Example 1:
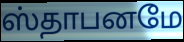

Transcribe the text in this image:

ஸ்தாபனமே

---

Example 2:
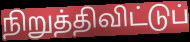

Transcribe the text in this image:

நிறுத்திவிட்டுப்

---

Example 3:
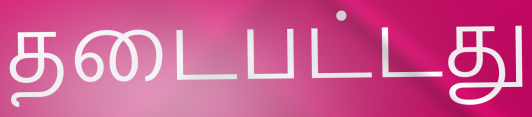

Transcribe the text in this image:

தடைபட்டது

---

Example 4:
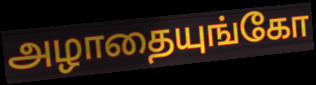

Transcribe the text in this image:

அழாதையுங்கோ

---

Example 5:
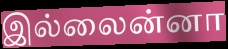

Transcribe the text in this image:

இல்லைன்னா